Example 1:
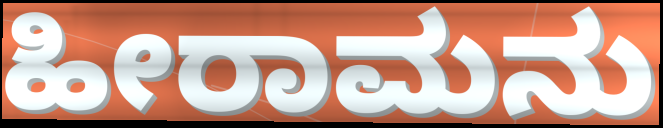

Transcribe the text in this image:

ಹೀರಾಮನು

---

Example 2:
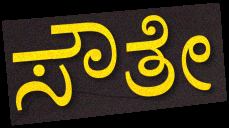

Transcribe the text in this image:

ಸೌತೇ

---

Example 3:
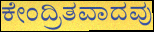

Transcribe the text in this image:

ಕೇಂದ್ರಿತವಾದವು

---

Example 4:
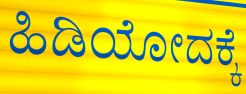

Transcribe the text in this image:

ಹಿಡಿಯೋದಕ್ಕೆ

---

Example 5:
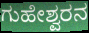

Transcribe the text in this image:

ಗುಹೇಶ್ವರನ